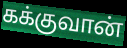
கக்குவான்